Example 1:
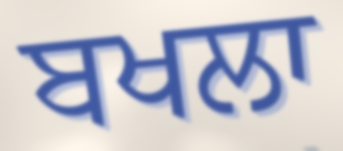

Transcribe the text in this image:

ਬਖਲਾ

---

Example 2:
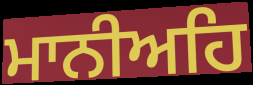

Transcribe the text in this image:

ਮਾਨੀਅਹਿ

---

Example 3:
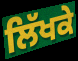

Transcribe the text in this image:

ਲਿੱਖਕੇ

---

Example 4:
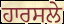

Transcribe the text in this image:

ਹਾਰਸਲੇ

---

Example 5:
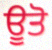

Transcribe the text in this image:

ਊਤੋ